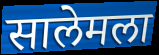
सालेमला